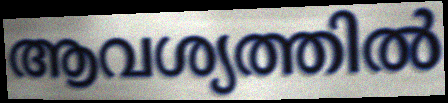
ആവശ്യത്തിൽ